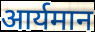
आर्यमान